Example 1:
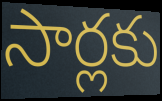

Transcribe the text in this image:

సార్లకు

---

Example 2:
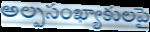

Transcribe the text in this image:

అల్పసంఖ్యాకులపై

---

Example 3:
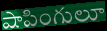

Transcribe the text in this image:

షాపింగులూ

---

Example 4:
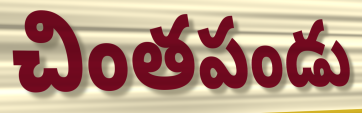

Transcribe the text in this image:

చింతపండు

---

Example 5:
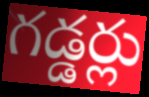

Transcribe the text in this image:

గడ్డర్లు